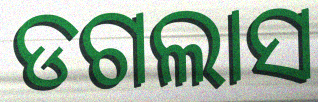
ଡଗଲାସ